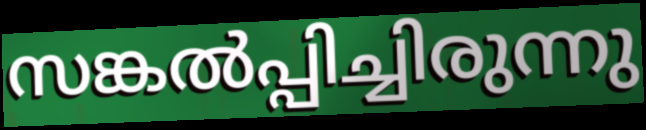
സങ്കൽപ്പിച്ചിരുന്നു